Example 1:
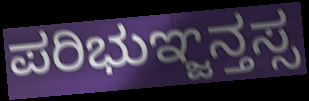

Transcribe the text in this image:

ಪರಿಭುಞ್ಜನ್ತಸ್ಸ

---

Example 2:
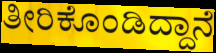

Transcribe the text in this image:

ತೀರಿಕೊಂಡಿದ್ದಾನೆ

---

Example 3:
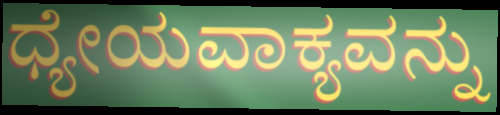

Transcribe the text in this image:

ಧ್ಯೇಯವಾಕ್ಯವನ್ನು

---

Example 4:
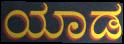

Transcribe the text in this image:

ಯಾಡ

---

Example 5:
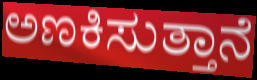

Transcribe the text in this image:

ಅಣಕಿಸುತ್ತಾನೆ